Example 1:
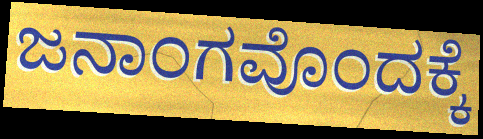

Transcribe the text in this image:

ಜನಾಂಗವೊಂದಕ್ಕೆ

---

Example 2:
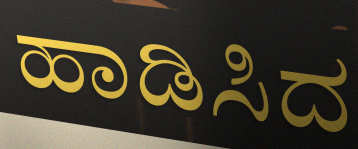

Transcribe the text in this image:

ಹಾಡಿಸಿದ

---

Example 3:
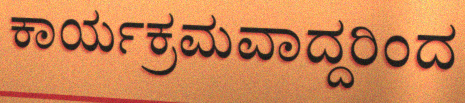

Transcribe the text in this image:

ಕಾರ್ಯಕ್ರಮವಾದ್ದರಿಂದ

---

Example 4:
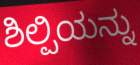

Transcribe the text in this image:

ಶಿಲ್ಪಿಯನ್ನು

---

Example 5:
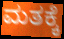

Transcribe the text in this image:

ಮತಕ್ಕೆ